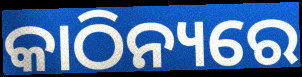
କାଠିନ୍ୟରେ